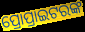
ପ୍ରୋପ୍ରାଇଟରଙ୍କ